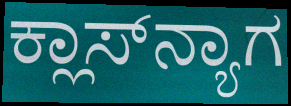
ಕ್ಲಾಸ್‌ನ್ಯಾಗ